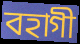
বহাগী